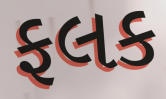
ફલક